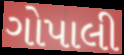
ગોપાલી